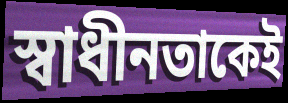
স্বাধীনতাকেই